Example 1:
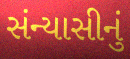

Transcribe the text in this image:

સંન્યાસીનું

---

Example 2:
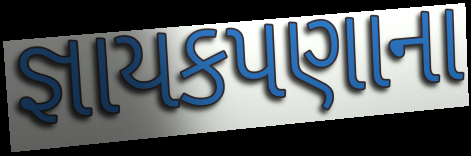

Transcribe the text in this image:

જ્ઞાયકપણાના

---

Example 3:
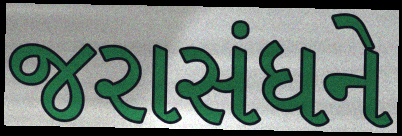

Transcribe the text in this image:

જરાસંધને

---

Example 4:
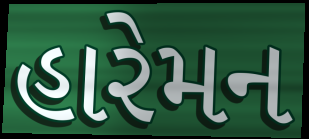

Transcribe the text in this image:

હારેમન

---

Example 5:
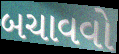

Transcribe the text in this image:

બચાવવો